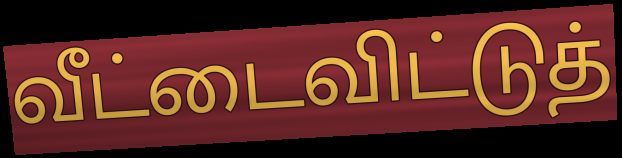
வீட்டைவிட்டுத்